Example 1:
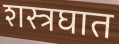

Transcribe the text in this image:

शस्त्रघात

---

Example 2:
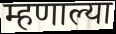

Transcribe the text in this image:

म्हणाल्या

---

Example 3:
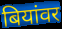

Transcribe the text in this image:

बियांवर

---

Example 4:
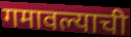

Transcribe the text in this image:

गमावल्याची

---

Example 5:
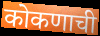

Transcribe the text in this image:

कोकणाची